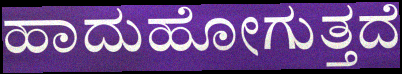
ಹಾದುಹೋಗುತ್ತದೆ